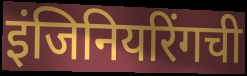
इंजिनियरिंगची